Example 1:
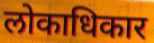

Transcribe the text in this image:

लोकाधिकार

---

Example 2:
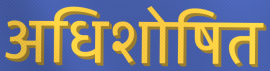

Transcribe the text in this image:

अधिशोषित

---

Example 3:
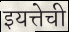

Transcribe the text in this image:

इयत्तेची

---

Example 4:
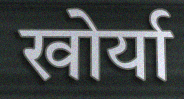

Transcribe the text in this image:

खोर्या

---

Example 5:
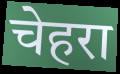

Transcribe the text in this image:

चेहरा